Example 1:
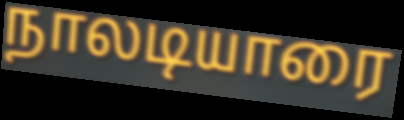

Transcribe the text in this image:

நாலடியாரை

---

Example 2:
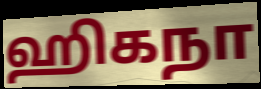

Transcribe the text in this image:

ஹிகநா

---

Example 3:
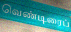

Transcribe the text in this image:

வெண்டிரைப்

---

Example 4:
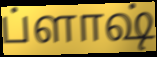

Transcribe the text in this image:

ப்ளாஷ்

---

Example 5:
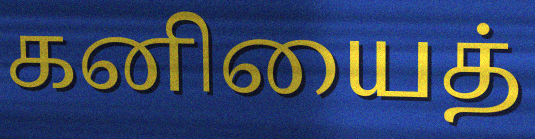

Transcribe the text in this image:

கனியைத்